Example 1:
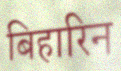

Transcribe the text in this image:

बिहारिन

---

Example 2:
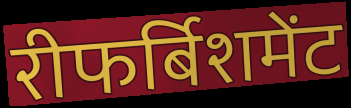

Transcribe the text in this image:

रीफर्बिशमेंट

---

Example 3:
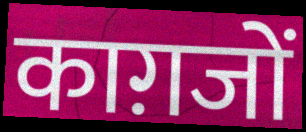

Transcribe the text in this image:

काग़जों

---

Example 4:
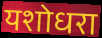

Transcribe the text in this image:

यशोधरा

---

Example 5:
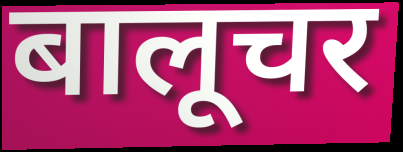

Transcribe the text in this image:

बालूचर